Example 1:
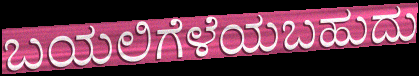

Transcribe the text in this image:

ಬಯಲಿಗೆಳೆಯಬಹುದು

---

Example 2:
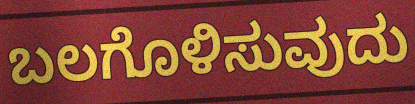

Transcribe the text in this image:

ಬಲಗೊಳಿಸುವುದು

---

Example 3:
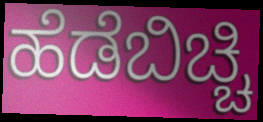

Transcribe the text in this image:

ಹೆಡೆಬಿಚ್ಚಿ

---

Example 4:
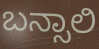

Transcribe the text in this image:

ಬನ್ಸಾಲಿ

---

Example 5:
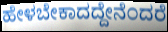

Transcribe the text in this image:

ಹೇಳಬೇಕಾದದ್ದೇನೆಂದರೆ